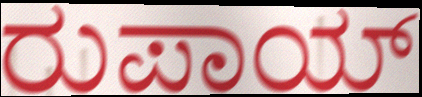
ರುಪಾಯ್